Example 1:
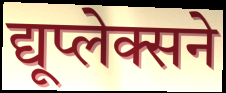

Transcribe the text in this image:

द्यूप्लेक्सने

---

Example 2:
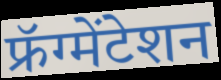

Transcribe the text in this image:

फ्रॅग्मेंटेशन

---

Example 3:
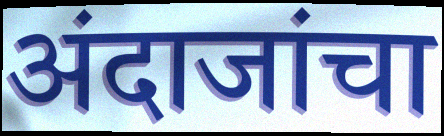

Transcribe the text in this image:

अंदाजांचा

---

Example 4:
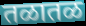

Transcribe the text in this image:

तळातळ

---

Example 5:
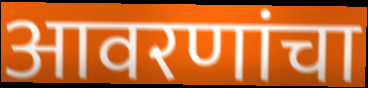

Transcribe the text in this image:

आवरणांचा